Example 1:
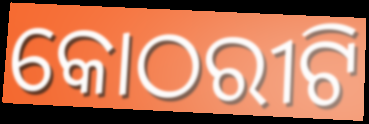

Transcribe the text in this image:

କୋଠରୀଟି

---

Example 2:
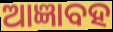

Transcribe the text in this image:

ଆଜ୍ଞାବହ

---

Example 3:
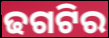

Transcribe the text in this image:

ଢଗଟିର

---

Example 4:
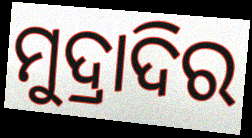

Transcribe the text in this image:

ମୁଦ୍ରାଦିର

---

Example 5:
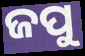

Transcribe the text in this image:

ଜପୁ